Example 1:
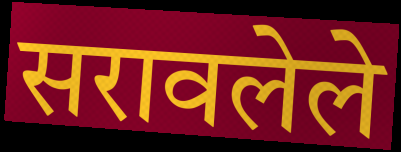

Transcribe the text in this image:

सरावलेले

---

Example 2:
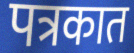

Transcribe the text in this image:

पत्रकात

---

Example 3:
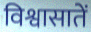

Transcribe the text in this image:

विश्वासातें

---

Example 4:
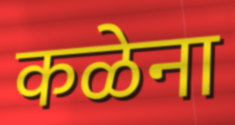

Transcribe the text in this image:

कळेना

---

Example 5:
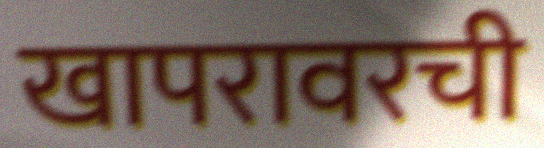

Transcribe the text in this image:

खापरावरची